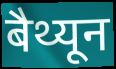
बैथ्यून